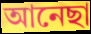
আনেছা